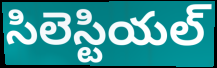
సిలెస్టియల్